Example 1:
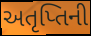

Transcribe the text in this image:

અતૃપ્તિની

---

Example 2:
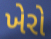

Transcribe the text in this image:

ખેરો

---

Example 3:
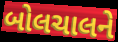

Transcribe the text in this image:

બોલચાલને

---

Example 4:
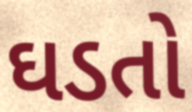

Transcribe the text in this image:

ઘડતો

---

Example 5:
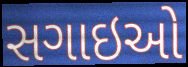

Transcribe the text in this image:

સગાઇઓ